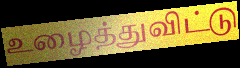
உழைத்துவிட்டு